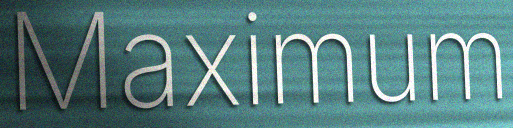
Maximum